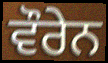
ਵੌਰੇਨ